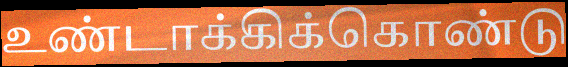
உண்டாக்கிக்கொண்டு